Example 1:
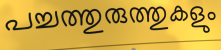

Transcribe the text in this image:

പച്ചത്തുരുത്തുകളും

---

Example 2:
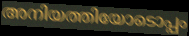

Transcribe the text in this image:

അനിയത്തിയോടൊപ്പം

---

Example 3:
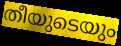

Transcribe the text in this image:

തീയുടെയും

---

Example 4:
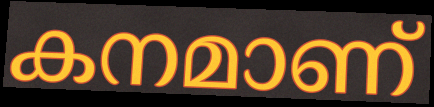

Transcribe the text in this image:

കനമാണ്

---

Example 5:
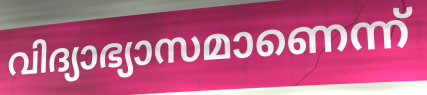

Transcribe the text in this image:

വിദ്യാഭ്യാസമാണെന്ന്